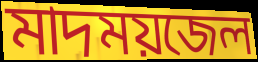
মাদময়জেল